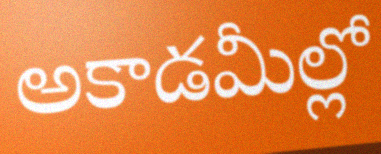
అకాడమీల్లో